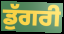
ਡੁੱਗਰੀ